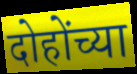
दोहोंच्या